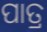
ପାତ୍ର